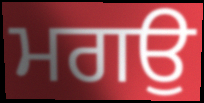
ਮਗਉ